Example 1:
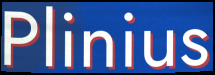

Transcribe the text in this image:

Plinius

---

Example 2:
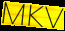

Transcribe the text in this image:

MKV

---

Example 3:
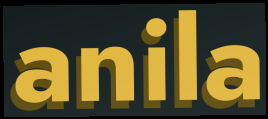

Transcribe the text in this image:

anila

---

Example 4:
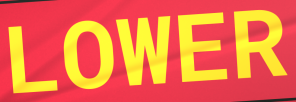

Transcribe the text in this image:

LOWER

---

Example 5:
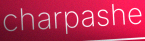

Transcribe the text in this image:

charpashe